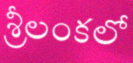
శ్రీలంకలో